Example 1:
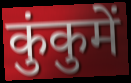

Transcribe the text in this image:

कुंकुमें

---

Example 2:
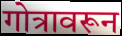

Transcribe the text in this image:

गोत्रावरून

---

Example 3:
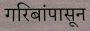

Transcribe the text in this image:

गरिबांपासून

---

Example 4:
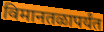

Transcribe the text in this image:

विमानतळापर्यंत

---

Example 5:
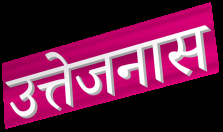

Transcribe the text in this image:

उत्तेजनास